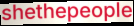
shethepeople